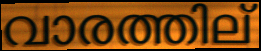
വാരത്തില്